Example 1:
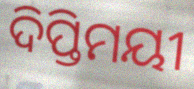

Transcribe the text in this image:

ଦିପ୍ତିମୟୀ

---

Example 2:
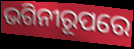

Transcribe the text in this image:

ଭଗିନୀରୂପରେ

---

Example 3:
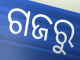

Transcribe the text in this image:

ଗଜରୁ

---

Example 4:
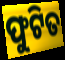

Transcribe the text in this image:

ଫୁଟିତ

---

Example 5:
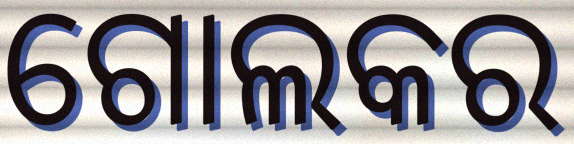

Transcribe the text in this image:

ଗୋଲକର